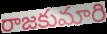
రాజకుమారి